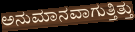
ಅನುಮಾನವಾಗುತ್ತಿತ್ತು